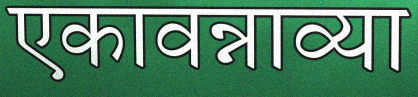
एकावन्नाव्या